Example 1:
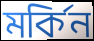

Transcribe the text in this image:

মর্কিন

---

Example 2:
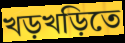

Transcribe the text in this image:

খড়খড়িতে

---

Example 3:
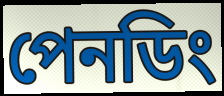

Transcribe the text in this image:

পেনডিং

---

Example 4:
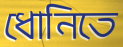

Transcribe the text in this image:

ধোনিতে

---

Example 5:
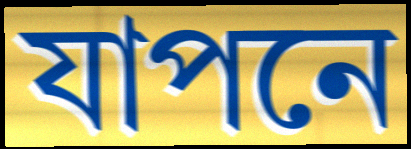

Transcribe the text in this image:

যাপনে